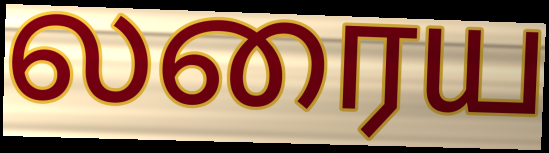
லரைய